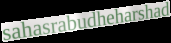
sahasrabudheharshad